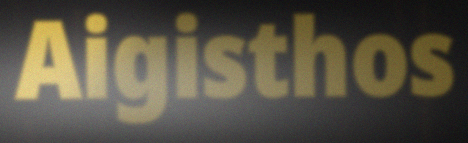
Aigisthos